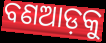
ବଣଆଡ଼କୁ